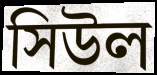
সিউল